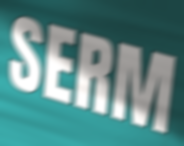
SERM